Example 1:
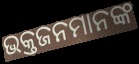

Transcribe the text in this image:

ଭକ୍ତଜନମାନଙ୍କ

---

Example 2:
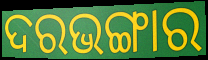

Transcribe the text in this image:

ଦରଭଙ୍ଗାର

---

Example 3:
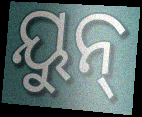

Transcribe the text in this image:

ୟୁନ୍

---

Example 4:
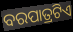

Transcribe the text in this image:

ବରପାତ୍ରଟିଏ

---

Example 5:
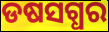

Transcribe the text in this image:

ଡଷସଗ୍ଧର